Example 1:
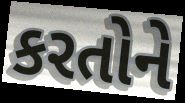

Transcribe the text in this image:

કરતોને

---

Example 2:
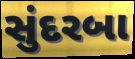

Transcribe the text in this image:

સુંદરબા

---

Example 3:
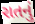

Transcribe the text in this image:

રાતનું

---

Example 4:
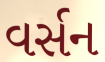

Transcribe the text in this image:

વર્સન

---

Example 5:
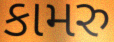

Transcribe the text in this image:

કામરુ